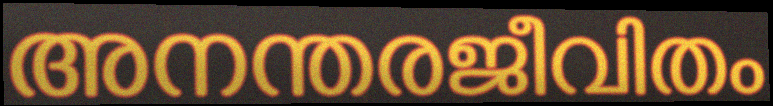
അനന്തരജീവിതം